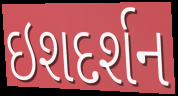
ઇશદર્શન